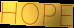
HOPE